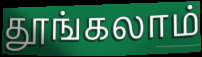
தூங்கலாம்